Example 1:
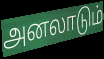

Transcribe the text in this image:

அனலாடும்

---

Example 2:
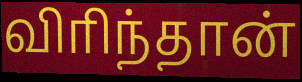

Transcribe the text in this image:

விரிந்தான்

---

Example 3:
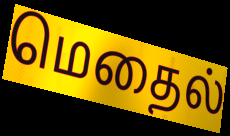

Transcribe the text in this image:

மெதைல்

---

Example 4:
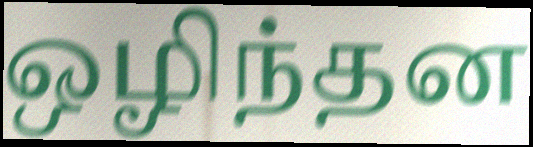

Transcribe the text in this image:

ஒழிந்தன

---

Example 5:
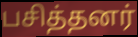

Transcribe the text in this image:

பசித்தனர்